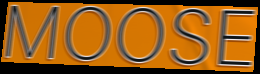
MOOSE